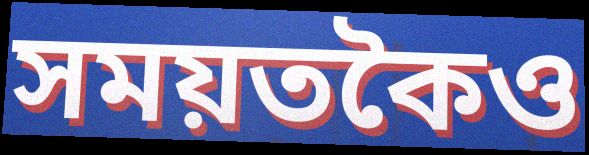
সময়তকৈও